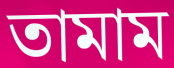
তামাম